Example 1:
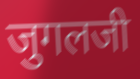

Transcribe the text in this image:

जुगलजी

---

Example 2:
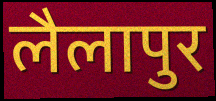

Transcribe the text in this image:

लैलापुर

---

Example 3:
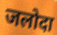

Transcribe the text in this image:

जलोदा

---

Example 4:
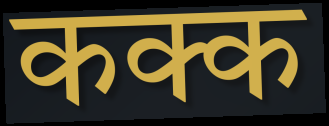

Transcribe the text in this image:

कक्क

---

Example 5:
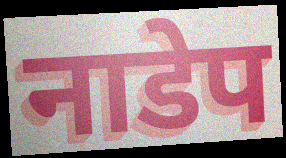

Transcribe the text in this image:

नाडेप